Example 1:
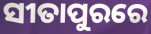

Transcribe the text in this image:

ସୀତାପୁରରେ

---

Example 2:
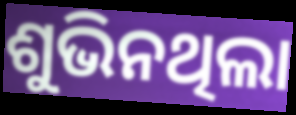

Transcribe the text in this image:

ଶୁଭିନଥିଲା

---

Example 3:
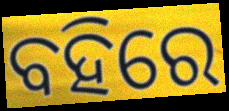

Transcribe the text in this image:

ବହିରେ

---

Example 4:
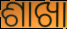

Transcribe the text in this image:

ଶାଖା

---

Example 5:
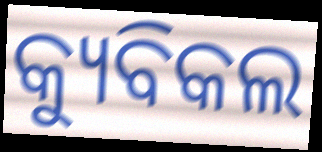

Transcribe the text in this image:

କ୍ୟୁବିକଲ